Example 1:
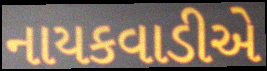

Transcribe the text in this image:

નાયકવાડીએ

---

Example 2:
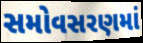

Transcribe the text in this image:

સમોવસરણમાં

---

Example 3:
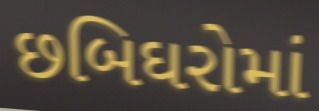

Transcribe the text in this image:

છબિઘરોમાં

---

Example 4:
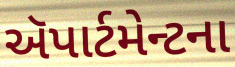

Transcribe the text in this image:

ઍપાર્ટમેન્ટના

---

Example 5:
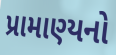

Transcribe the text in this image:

પ્રામાણ્યનો